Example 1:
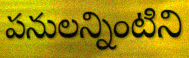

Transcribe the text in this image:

పనులన్నింటిని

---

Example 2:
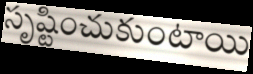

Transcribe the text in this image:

సృష్టించుకుంటాయి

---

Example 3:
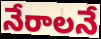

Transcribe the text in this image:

నేరాలనే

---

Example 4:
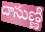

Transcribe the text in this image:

దాసుణ్ణి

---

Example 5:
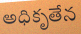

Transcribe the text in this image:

అధికృతేన